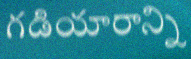
గడియారాన్ని